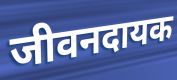
जीवनदायक